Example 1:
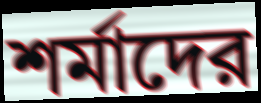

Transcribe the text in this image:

শর্মাদের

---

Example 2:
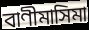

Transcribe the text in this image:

বাণীমাসিমা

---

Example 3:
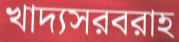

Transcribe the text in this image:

খাদ্যসরবরাহ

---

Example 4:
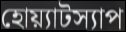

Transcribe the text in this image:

হোয়্যাটস্যাপ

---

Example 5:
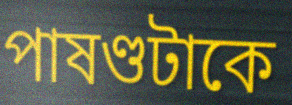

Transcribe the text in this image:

পাষণ্ডটাকে